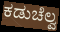
ಕಡುಚೆಲ್ವ